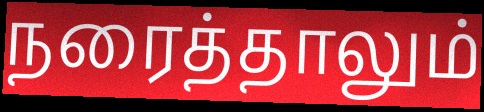
நரைத்தாலும்